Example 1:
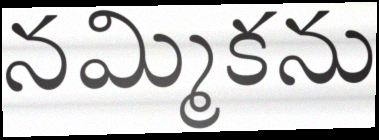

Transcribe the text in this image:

నమ్మికను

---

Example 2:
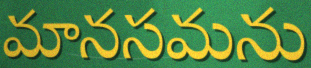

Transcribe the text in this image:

మానసమను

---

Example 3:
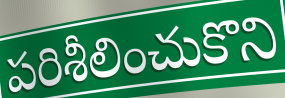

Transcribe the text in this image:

పరిశీలించుకొని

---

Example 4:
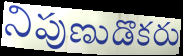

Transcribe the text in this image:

నిపుణుడొకరు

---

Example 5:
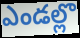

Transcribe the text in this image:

ఎండల్లొ